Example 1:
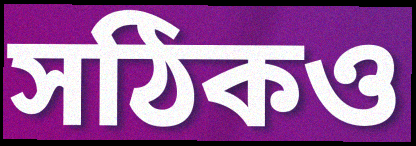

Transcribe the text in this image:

সঠিকও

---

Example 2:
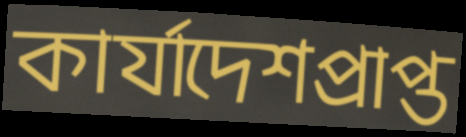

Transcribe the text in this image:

কার্যাদেশপ্রাপ্ত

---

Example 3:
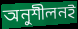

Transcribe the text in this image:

অনুশীলনই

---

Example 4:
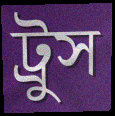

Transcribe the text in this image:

ট্রুস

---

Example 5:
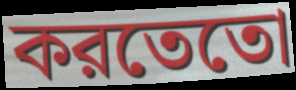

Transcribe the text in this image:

করতেতো